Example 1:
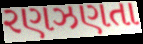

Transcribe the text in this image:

રણઝણતા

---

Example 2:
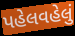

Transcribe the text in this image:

પહેલવહેલું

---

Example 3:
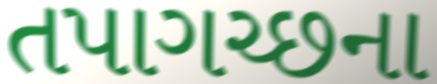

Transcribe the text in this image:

તપાગચ્છના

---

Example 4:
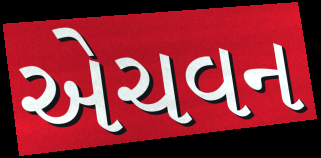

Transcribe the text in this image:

એચવન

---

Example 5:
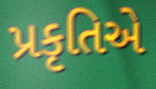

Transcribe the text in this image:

પ્રકૃતિએ